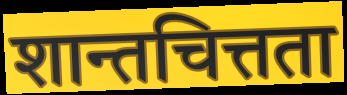
शान्तचित्तता